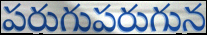
పరుగుపరుగున